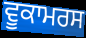
ਵੂਕਾਮਰਸ